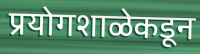
प्रयोगशाळेकडून